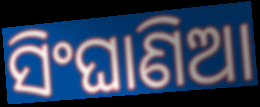
ସିଂଘାଣିଆ